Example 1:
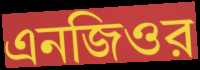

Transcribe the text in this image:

এনজিওর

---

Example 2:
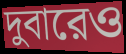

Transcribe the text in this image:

দুবারেও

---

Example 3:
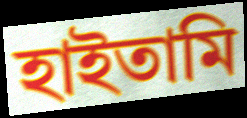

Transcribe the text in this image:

হাইতামি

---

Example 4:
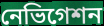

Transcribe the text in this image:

নেভিগেশন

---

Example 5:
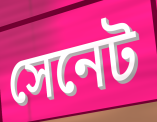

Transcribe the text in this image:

সেনেট